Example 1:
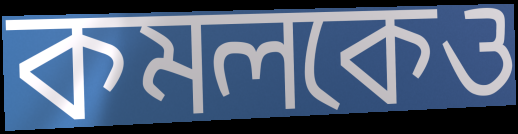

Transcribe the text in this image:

কমলকেও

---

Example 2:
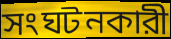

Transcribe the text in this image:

সংঘটনকারী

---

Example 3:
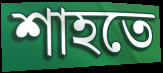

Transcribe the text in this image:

শাহতে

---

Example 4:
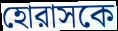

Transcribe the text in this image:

হোরাসকে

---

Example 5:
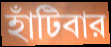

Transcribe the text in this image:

হাঁটিবার